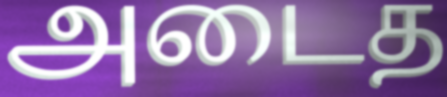
அடைத